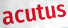
acutus